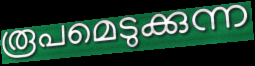
രൂപമെടുക്കുന്ന